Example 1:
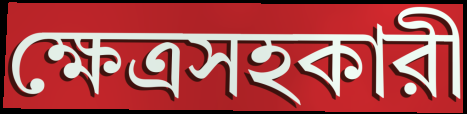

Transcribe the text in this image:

ক্ষেত্রসহকারী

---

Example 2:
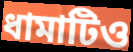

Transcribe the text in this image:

ধামাটিও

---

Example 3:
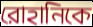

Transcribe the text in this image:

রোহানিকে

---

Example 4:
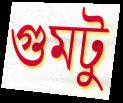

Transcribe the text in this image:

গুমটু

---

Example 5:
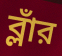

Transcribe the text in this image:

ব্লাঁর